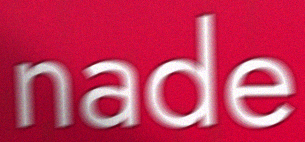
nade